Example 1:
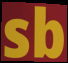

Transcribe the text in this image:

sb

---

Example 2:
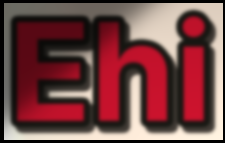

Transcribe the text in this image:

Ehi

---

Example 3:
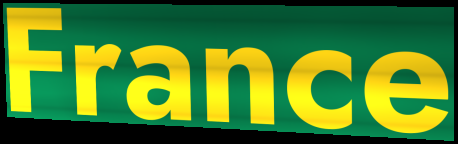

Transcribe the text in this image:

France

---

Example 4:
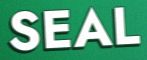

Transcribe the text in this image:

SEAL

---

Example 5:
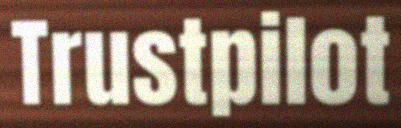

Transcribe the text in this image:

Trustpilot